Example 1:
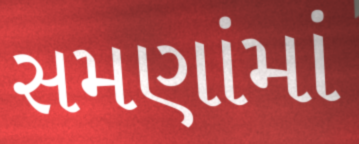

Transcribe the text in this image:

સમણાંમાં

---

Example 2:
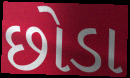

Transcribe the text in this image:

છોડા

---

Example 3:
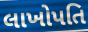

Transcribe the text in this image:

લાખોપતિ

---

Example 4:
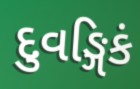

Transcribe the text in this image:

દુવઙ્ગિકં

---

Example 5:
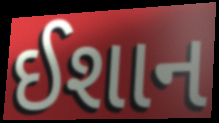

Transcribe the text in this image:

ઈશાન